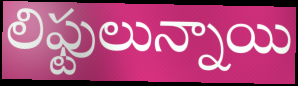
లిఫ్టులున్నాయి